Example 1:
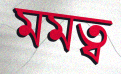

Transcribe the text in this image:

মমত্ব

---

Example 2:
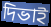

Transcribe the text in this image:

দিভাই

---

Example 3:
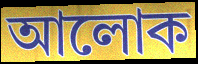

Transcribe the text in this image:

আলোক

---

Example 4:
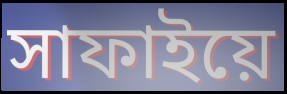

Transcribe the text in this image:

সাফাইয়ে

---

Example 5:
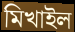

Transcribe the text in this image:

মিখাইল